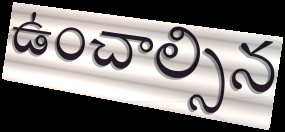
ఉంచాల్సిన